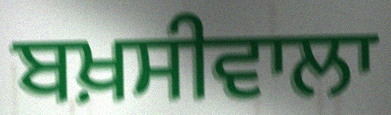
ਬਖ਼ਸੀਵਾਲਾ